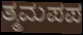
ತ್ಮಮಪಪ